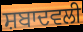
ਸ਼ਬਾਦਵਲੀ